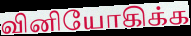
வினியோகிக்க